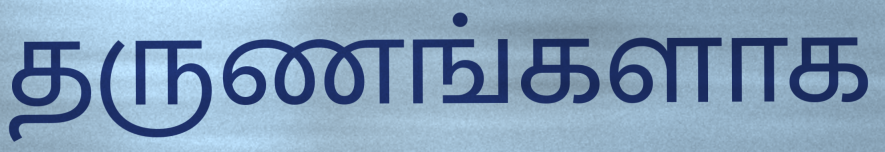
தருணங்களாக